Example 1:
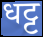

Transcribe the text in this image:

धट्ट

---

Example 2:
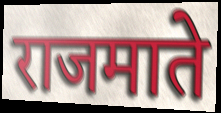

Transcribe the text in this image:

राजमाते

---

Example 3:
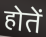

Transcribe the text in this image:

होतें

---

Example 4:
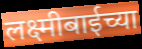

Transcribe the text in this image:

लक्ष्मीबाईच्या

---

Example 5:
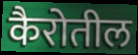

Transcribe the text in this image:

कैरोतील